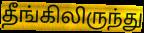
தீங்கிலிருந்து